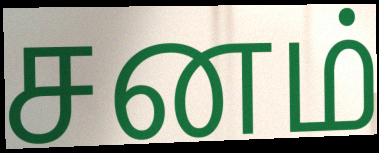
சனம்